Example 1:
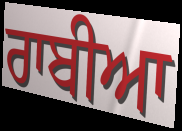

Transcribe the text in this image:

ਰਾਬੀਆ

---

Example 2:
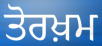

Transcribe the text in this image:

ਤੋਰਖ਼ਮ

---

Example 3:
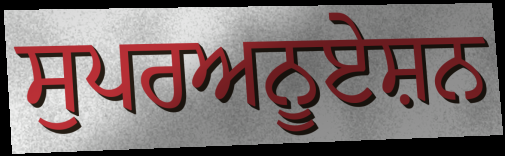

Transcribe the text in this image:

ਸੁਪਰਅਨੂਏਸ਼ਨ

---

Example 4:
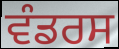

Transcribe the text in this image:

ਵੰਡਰਸ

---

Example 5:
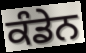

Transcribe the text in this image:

ਕੰਡੇਨ